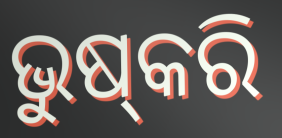
ଭୁଷ୍‍କରି